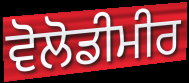
ਵੋਲੋਡੀਮੀਰ